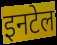
इनटेल